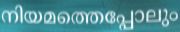
നിയമത്തെപ്പോലും